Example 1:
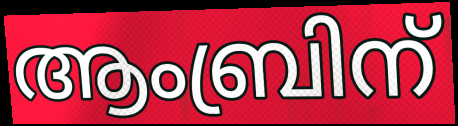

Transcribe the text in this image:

ആംബ്രിന്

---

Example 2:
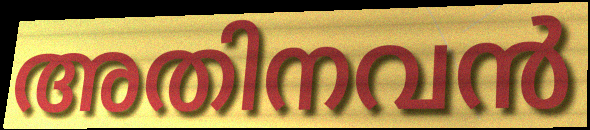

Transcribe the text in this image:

അതിനവൻ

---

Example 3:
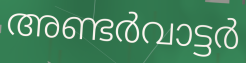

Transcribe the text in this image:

അണ്ടർവാട്ടർ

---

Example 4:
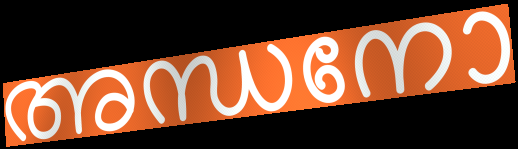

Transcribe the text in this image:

അന്ധനോ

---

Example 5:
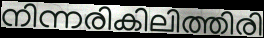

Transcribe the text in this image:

നിന്നരികിലിത്തിരി